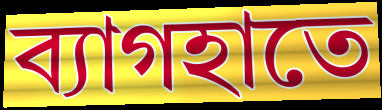
ব্যাগহাতে